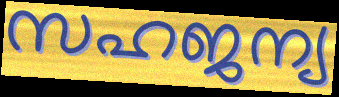
സഹജന്യ